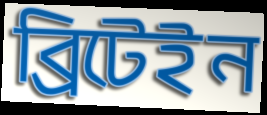
ব্ৰিটেইন